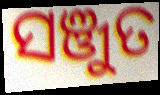
ସଞ୍ଜୁତ